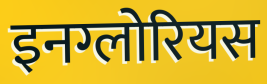
इनग्लोरियस